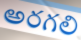
అరగలి